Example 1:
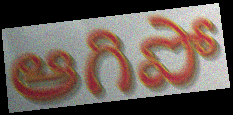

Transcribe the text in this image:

ఆగిపో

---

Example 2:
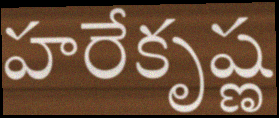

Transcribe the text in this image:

హరేకృష్ణ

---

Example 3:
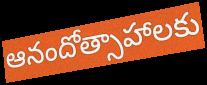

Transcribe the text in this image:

ఆనందోత్సాహాలకు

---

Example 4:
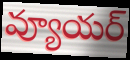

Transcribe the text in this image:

వ్యూయర్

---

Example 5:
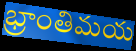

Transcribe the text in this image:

భ్రాంతిమయ